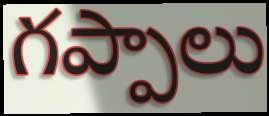
గప్పాలు